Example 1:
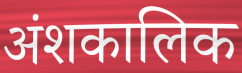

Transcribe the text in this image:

अंशकालिक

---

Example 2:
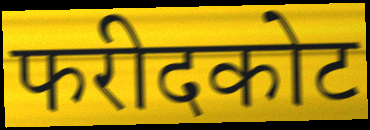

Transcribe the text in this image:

फरीदकोट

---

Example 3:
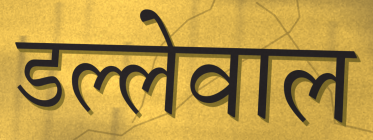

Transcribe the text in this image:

डल्लेवाल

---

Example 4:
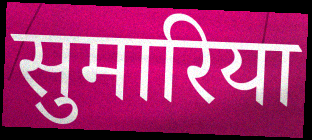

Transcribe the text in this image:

सुमारिया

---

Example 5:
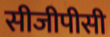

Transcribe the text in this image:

सीजीपीसी